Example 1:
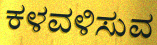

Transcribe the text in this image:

ಕಳವಳಿಸುವ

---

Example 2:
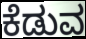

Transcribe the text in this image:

ಕೆಡುವ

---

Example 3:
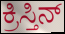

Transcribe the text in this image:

ಕ್ರಿಸ್ತಿನ್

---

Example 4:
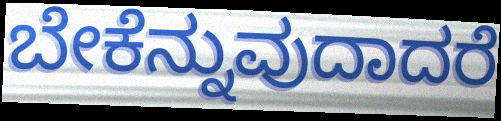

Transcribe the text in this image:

ಬೇಕೆನ್ನುವುದಾದರೆ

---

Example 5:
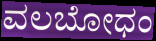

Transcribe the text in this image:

ವಲಬೋಧಂ